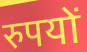
रुपयों